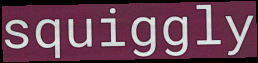
squiggly